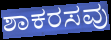
ಶಾಕರಸವು